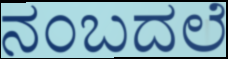
ನಂಬದಲೆ